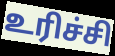
உரிச்சி